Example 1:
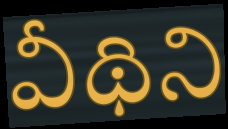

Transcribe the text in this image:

వీథిని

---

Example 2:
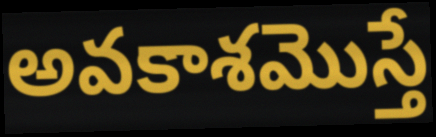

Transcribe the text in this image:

అవకాశమొస్తే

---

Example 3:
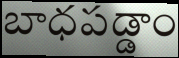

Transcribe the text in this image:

బాధపడ్డాం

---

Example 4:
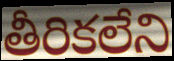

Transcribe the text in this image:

తీరికలేని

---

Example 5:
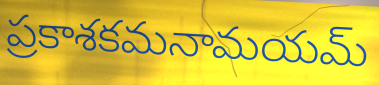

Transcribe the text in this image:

ప్రకాశకమనామయమ్